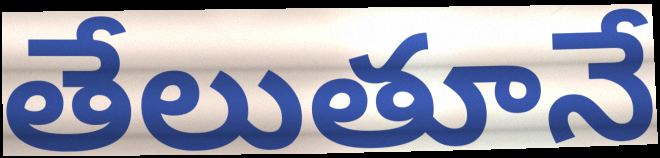
తేలుతూనే